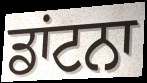
ਡਾਂਟਨਾ